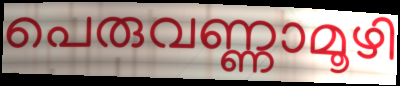
പെരുവണ്ണാമൂഴി